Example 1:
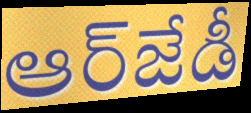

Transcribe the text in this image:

ఆర్‌జేడీ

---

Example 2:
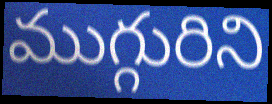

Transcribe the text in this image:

ముగ్గురిని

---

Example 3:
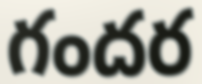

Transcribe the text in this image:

గందర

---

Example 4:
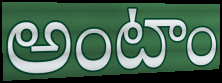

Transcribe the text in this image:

అంటాం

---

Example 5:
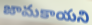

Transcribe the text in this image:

జామకాయని